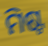
ମିଷ୍ଟ